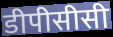
डीपीसीसी